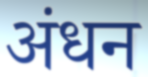
अंधन